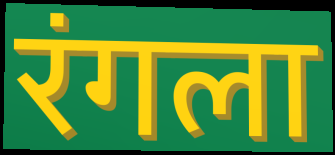
रंगला